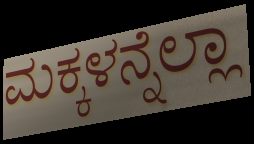
ಮಕ್ಕಳನ್ನೆಲ್ಲಾ